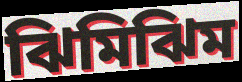
ঝিমিঝিম